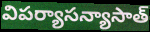
విపర్యాసన్యాసాత్